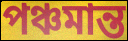
পঞ্চমান্ত